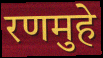
रणमुहे